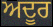
ਅਦੂਰ